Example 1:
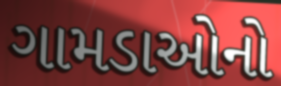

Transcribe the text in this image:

ગામડાઓનો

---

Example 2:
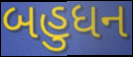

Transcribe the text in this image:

બહુધન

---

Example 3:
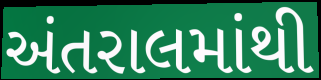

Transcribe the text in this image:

અંતરાલમાંથી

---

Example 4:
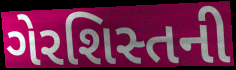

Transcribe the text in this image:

ગેરશિસ્તની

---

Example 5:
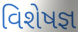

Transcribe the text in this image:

વિશેષજ્ઞ